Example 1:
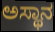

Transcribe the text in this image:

ಅಸ್ಥಾನ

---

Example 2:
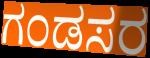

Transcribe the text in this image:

ಗಂಡಸರ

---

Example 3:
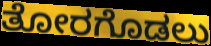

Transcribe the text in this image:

ತೋರಗೊಡಲು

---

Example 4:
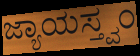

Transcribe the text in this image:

ಜ್ಯಾಯಸ್ತ್ವಂ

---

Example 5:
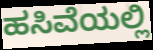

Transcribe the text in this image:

ಹಸಿವೆಯಲ್ಲಿ